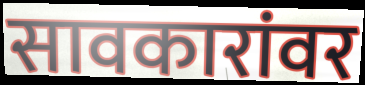
सावकारांवर